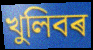
খুলিবৰ